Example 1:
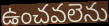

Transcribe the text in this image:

ఉంచవలెను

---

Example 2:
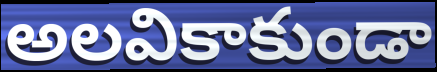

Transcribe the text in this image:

అలవికాకుండా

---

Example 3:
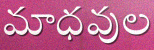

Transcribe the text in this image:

మాధవుల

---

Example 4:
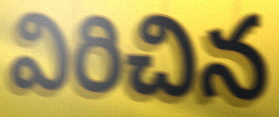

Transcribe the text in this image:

విరిచిన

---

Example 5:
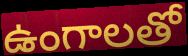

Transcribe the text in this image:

ఉంగాలతో